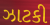
ઝાટકી